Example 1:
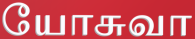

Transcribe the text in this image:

யோசுவா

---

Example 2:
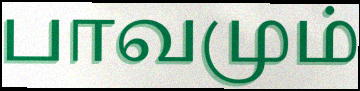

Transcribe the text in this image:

பாவமும்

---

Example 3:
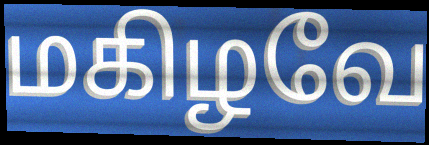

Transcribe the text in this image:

மகிழவே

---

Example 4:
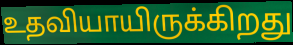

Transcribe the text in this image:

உதவியாயிருக்கிறது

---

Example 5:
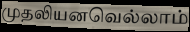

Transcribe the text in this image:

முதலியனவெல்லாம்